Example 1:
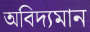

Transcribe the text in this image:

অবিদ্যমান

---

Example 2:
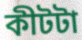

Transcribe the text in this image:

কীটটা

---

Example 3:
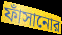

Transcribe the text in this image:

ফাঁসানোর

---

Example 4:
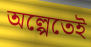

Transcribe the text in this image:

অল্পেতেই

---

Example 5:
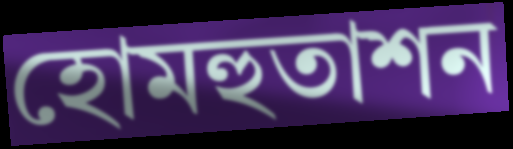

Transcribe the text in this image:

হোমহুতাশন